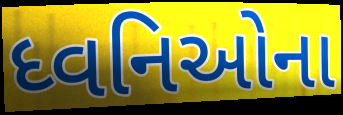
ધ્વનિઓના